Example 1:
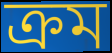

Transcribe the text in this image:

ক্রম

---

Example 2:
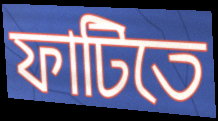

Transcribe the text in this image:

ফাটিতে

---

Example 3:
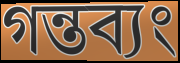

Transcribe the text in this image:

গন্তব্যং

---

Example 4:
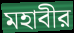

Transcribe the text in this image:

মহাবীর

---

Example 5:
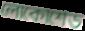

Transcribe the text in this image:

লোকোশেড